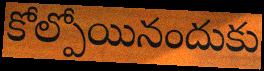
కోల్పోయినందుకు